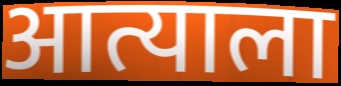
आत्याला